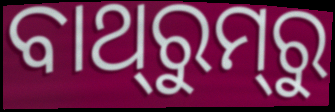
ବାଥ୍‌ରୁମ୍‌ରୁ